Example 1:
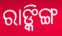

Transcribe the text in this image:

ରାଙ୍କିଙ୍ଗ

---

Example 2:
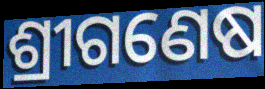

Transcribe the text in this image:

ଶ୍ରୀଗଣେଷ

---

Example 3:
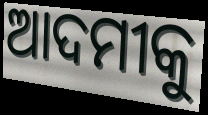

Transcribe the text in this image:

ଆଦମୀକୁ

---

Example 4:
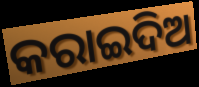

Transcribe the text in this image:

କରାଇଦିଅ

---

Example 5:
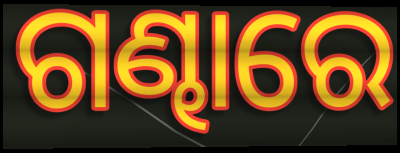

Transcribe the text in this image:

ଗଣ୍ଢାରେ